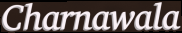
Charnawala